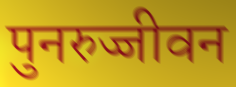
पुनरुज्जीवन